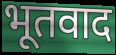
भूतवाद